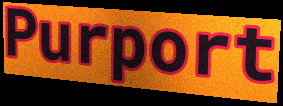
Purport